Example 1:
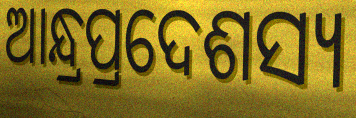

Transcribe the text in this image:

ଆନ୍ଧ୍ରପ୍ରଦେଶସ୍ୟ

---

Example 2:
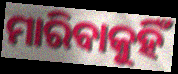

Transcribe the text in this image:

ମାରିବାକୁହିଁ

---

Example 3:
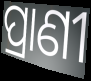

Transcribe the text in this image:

ପ୍ରାଣୀ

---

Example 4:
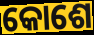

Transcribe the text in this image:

କୋଶେ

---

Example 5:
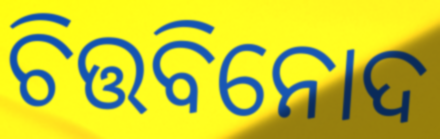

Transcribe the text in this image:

ଚିତ୍ତବିନୋଦ